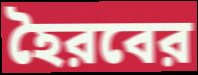
হৈরবের